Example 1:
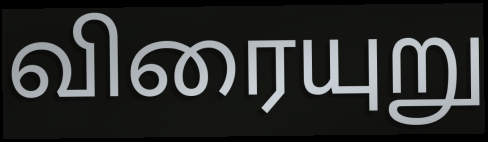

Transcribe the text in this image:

விரையுறு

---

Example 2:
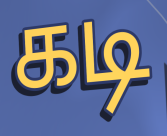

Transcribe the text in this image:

கடி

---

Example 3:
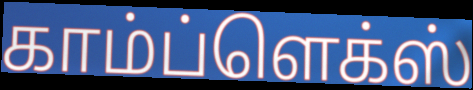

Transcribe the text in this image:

காம்ப்ளெக்ஸ்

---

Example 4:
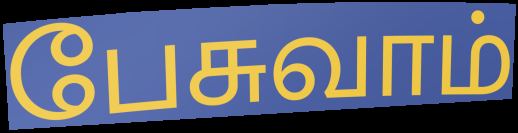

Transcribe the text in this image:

பேசுவாம்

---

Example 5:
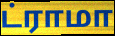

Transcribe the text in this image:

ட்ராமா